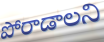
పోరాడాలని